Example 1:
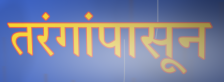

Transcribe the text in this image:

तरंगांपासून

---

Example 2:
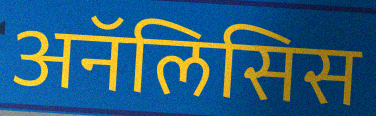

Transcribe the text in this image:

अनॅलिसिस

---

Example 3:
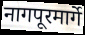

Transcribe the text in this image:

नागपूरमार्गे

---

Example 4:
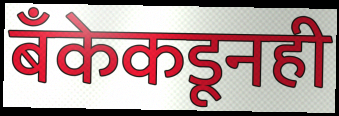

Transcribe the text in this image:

बँकेकडूनही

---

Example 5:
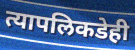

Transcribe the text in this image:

त्यापलिकडेही